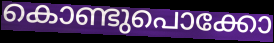
കൊണ്ടുപൊക്കോ